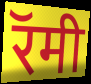
रॅमी